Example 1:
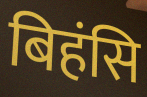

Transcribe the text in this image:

बिहंसि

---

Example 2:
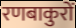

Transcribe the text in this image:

रणबाकुरों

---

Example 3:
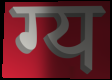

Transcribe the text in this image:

ग्य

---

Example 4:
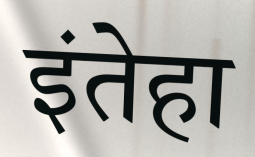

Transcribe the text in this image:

इंतेहा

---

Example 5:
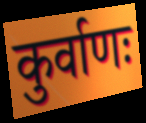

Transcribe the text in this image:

कुर्वाणः